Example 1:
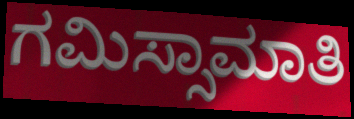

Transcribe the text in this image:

ಗಮಿಸ್ಸಾಮಾತಿ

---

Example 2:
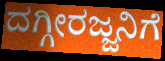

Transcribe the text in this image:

ದಗ್ಗೀರಜ್ಜನಿಗೆ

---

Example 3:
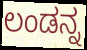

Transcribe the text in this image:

ಲಂಡನ್ನ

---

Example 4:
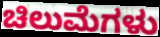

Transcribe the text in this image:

ಚಿಲುಮೆಗಳು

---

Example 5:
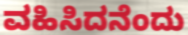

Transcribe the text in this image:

ವಹಿಸಿದನೆಂದು